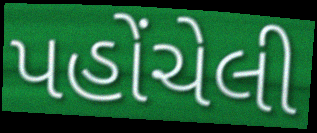
પહોંચેલી